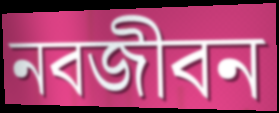
নবজীবন